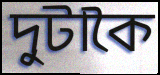
দুটাকৈ